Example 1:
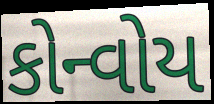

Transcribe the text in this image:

કોન્વોય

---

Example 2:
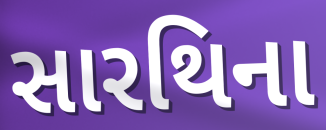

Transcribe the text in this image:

સારથિના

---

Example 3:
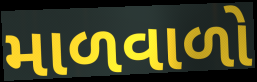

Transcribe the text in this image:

માળવાળો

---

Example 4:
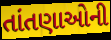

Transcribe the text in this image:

તાંતણાઓની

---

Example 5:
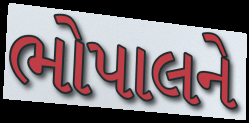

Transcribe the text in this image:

ભોપાલને